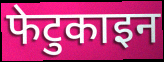
फेटुकाइन